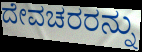
ದೇವಚರರನ್ನು